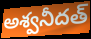
అశ్వనీదత్